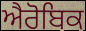
ਐਰੋਬਿਕ